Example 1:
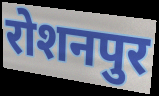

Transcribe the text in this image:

रोशनपुर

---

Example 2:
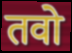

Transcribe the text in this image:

तवो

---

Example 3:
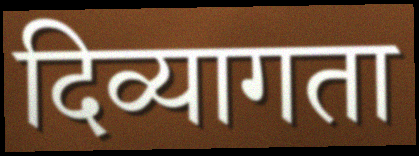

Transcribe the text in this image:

दिव्यागता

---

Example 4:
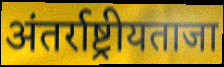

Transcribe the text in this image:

अंतर्राष्ट्रीयताजा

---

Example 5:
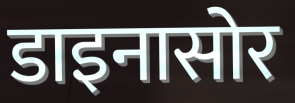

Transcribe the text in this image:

डाइनासोर